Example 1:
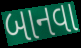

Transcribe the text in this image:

બાનવા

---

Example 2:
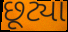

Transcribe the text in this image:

છૂટ્યા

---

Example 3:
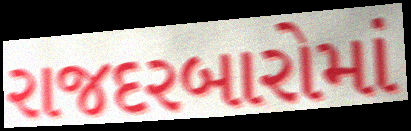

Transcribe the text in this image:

રાજદરબારોમાં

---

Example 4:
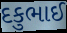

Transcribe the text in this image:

દકુભાઈ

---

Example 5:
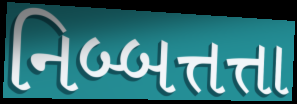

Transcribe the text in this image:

નિબ્બત્તત્તા